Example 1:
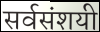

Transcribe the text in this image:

सर्वसंशयी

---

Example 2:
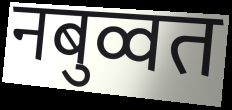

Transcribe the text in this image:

नबुव्वत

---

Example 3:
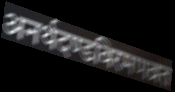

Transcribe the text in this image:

अनर्थदण्डविरमणव्रत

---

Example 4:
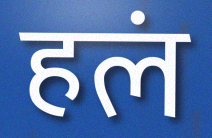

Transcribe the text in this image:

हलं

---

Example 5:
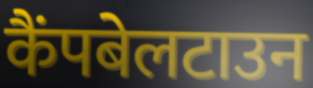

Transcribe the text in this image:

कैंपबेलटाउन